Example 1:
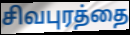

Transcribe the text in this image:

சிவபுரத்தை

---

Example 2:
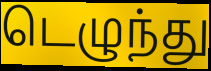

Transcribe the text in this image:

டெழுந்து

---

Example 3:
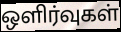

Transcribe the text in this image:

ஒளிர்வுகள்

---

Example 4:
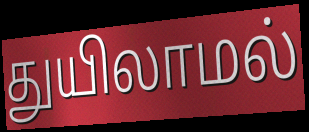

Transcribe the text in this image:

துயிலாமல்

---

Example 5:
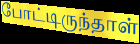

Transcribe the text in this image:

போட்டிருந்தாள்